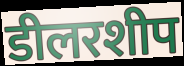
डीलरशीप